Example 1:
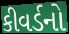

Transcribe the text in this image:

કીવર્ડનો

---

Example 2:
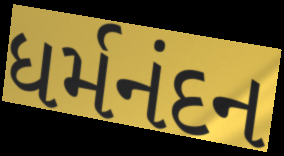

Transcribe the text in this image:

ધર્મનંદન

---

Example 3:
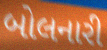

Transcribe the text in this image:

બોલનારી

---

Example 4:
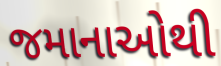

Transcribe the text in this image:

જમાનાઓથી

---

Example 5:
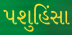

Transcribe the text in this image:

પશુહિંસા